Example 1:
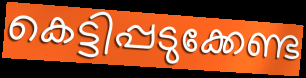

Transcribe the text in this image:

കെട്ടിപ്പടുക്കേണ്ട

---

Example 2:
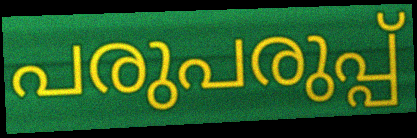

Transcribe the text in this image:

പരുപരുപ്പ്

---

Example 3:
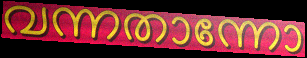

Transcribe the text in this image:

വന്നതാന്നോ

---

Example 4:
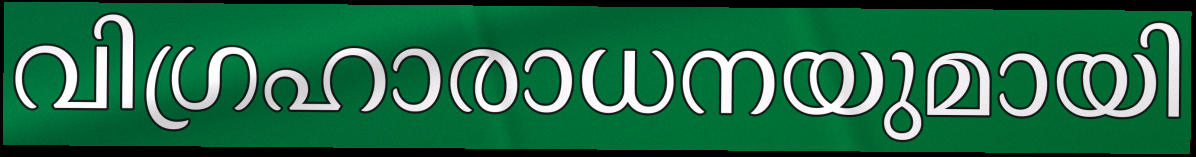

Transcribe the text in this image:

വിഗ്രഹാരാധനയുമായി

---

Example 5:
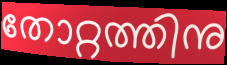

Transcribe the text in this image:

തോറ്റത്തിനു